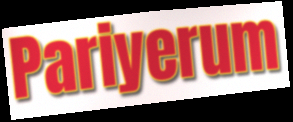
Pariyerum